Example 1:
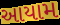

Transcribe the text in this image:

આયામ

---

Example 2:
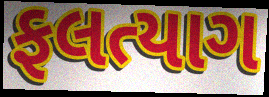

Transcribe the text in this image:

ફલત્યાગ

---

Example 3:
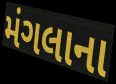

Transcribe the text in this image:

મંગલાના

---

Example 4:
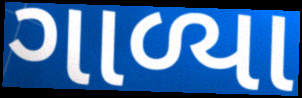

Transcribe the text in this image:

ગાળ્યા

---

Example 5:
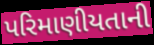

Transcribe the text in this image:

પરિમાણીયતાની